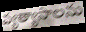
వ్యత్యాసాలను